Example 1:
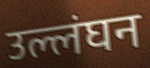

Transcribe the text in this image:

उल्लंघन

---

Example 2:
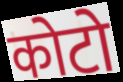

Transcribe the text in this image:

कोटो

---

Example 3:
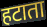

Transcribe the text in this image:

हटाता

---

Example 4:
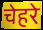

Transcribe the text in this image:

चेहरे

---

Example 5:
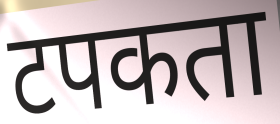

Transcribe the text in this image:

टपकता